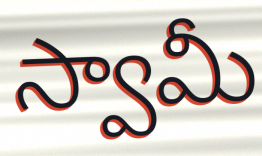
స్వామీ